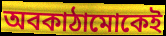
অবকাঠামোকেই